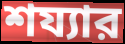
শয্যার